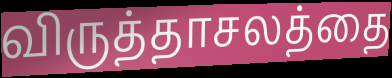
விருத்தாசலத்தை